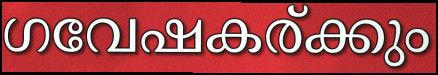
ഗവേഷകര്ക്കും